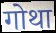
गोथा